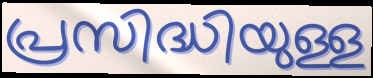
പ്രസിദ്ധിയുള്ള